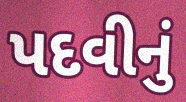
પદવીનું